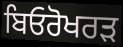
ਬਿਓਰੋਖਰੜ